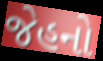
જેહનો